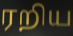
ரறிய